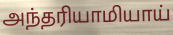
அந்தரியாமியாய்